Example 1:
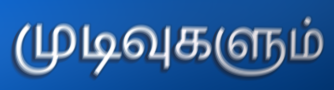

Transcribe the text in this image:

முடிவுகளும்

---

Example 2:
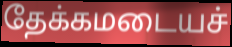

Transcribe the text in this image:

தேக்கமடையச்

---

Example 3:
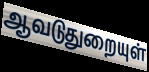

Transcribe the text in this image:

ஆவடுதுறையுள்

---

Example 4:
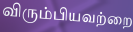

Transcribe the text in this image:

விரும்பியவற்றை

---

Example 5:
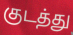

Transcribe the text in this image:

குடத்து